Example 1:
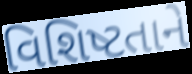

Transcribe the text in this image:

વિશિષ્ટતાને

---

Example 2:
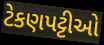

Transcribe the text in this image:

ટેકણપટ્ટીઓ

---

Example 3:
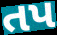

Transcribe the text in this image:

તપ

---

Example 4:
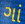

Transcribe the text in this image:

ગાં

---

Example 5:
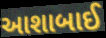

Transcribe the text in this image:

આશાબાઈ